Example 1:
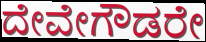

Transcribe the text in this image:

ದೇವೇಗೌಡರೇ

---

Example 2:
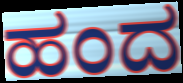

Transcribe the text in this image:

ಹಂದ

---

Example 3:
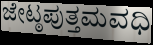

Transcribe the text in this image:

ಜೇಟ್ಠಪುತ್ತಮವಧಿ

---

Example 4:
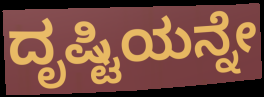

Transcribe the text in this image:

ದೃಷ್ಟಿಯನ್ನೇ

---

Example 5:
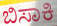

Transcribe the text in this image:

ಬಿಸಾಕಿ